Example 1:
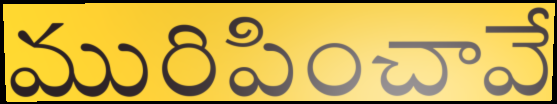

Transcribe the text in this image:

మురిపించావే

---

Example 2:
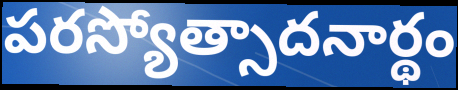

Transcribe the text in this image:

పరస్యోత్సాదనార్థం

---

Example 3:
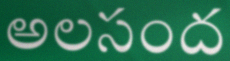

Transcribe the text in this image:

అలసంద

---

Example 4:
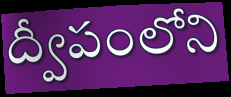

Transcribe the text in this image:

ద్వీపంలోని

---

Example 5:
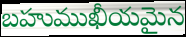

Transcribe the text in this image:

బహుముఖీయమైన